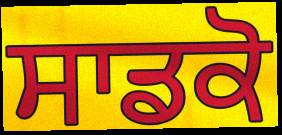
ਸਾਡਕੋ